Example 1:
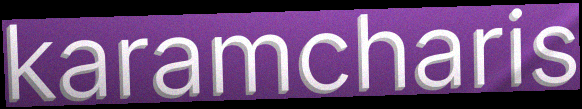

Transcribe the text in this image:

karamcharis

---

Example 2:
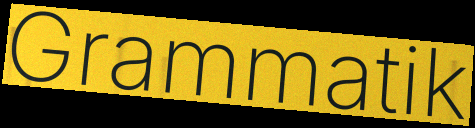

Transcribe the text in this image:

Grammatik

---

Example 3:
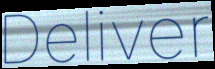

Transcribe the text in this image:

Deliver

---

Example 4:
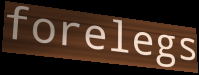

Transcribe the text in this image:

forelegs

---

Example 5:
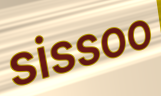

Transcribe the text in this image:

sissoo